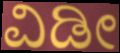
ವಿಡೀ